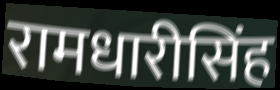
रामधारीसिंह